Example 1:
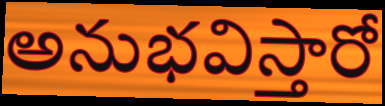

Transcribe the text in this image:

అనుభవిస్తారో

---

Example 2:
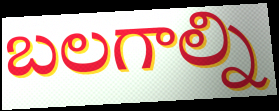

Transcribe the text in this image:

బలగాల్ని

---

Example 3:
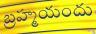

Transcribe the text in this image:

బ్రహ్మయందు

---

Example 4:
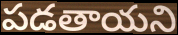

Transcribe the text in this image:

పడతాయని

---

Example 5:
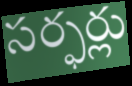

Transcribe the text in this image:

సర్ఫర్లు